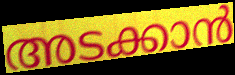
അടക്കാൻ